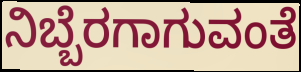
ನಿಬ್ಬೆರಗಾಗುವಂತೆ